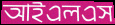
আইএলএস